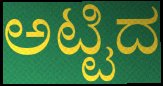
ಅಟ್ಟಿದ